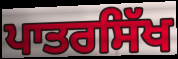
ਪਾਤਰਸਿੱਖ